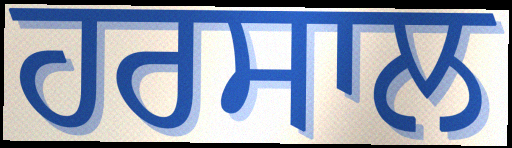
ਹਰਸਾਲ